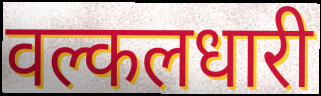
वल्कलधारी